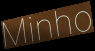
Minho